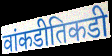
वांकडीतिकडी